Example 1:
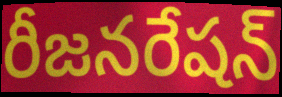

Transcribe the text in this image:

రీజనరేషన్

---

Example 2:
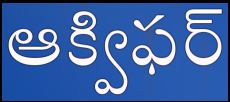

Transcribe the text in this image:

ఆక్విఫర్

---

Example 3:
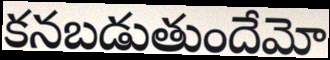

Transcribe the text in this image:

కనబడుతుందేమో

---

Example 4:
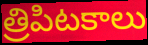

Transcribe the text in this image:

త్రిపిటకాలు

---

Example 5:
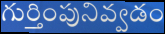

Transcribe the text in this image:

గుర్తింపునివ్వడం